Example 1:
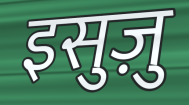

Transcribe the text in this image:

इसुज़ु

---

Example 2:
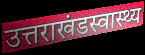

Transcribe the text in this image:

उत्तराखंडस्वास्थ्य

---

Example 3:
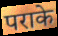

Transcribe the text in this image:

पराके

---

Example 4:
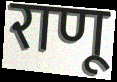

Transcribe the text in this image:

राणू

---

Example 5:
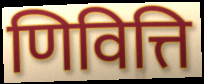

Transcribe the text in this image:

णिवित्ति